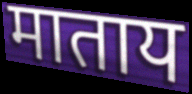
माताय